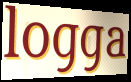
logga